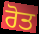
ਰੋਤ